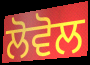
ਲੋਵੋਲ